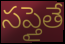
సప్తైతే